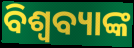
ବିଶ୍ୱବ୍ୟାଙ୍କ